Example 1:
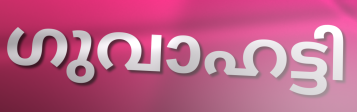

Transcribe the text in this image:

ഗുവാഹട്ടി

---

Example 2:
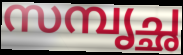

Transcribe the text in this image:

സമ്പൃച്ഛ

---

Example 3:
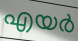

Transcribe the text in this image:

എയർ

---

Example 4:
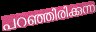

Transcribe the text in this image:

പറഞ്ഞിരിക്കുന്ന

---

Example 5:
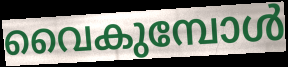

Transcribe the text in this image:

വൈകുമ്പോൾ